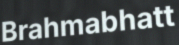
Brahmabhatt